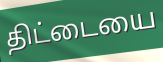
திட்டையை